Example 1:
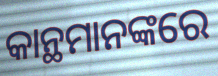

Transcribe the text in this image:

କାନ୍ଥମାନଙ୍କରେ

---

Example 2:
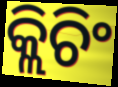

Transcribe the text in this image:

କ୍ଲିଚିଂ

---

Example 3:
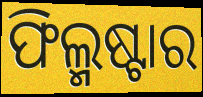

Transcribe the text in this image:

ଫିଲ୍ମଷ୍ଟାର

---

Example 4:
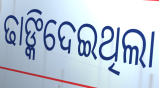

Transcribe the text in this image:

ଢାଙ୍କିଦେଇଥିଲା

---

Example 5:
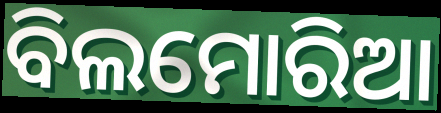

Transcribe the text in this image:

ବିଲମୋରିଆ